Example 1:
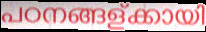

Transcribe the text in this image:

പഠനങ്ങള്ക്കായി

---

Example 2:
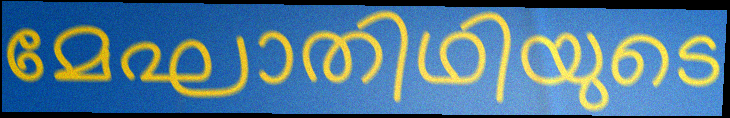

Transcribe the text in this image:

മേഘാതിഥിയുടെ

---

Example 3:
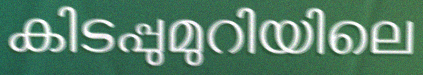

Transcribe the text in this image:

കിടപ്പുമുറിയിലെ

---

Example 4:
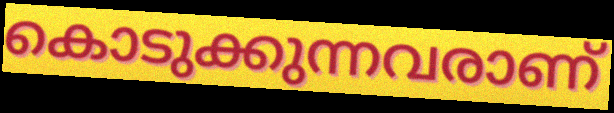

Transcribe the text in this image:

കൊടുക്കുന്നവരാണ്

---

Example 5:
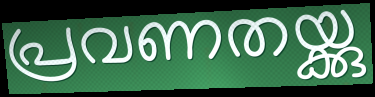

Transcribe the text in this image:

പ്രവണതയ്ക്കു